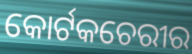
କୋର୍ଟକଚେରୀର